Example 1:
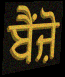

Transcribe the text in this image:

ਬੈਂਜ਼ੋ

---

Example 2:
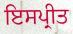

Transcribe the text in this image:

ਇਸਪ੍ਰੀਤ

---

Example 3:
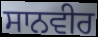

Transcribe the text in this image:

ਸਾਨਵੀਰ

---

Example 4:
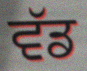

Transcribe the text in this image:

ਵੱਡ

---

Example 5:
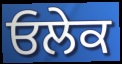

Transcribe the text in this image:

ਓਲੇਕ